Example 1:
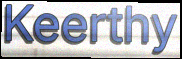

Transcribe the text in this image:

Keerthy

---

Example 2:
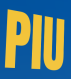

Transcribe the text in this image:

PIU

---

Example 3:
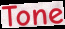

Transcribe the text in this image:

Tone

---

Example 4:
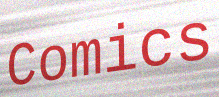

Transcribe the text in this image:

Comics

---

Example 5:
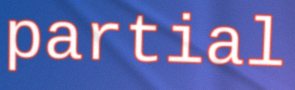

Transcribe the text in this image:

partial